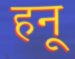
हनू